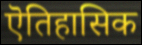
ऎतिहासिक